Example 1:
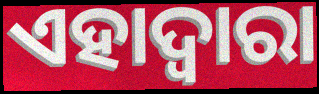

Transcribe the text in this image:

ଏହାଦ୍ୱାରା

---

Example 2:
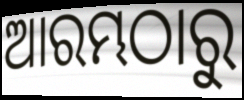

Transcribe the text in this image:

ଆରମ୍ଭଠାରୁ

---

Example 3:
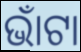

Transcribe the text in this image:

ଭାଁଟା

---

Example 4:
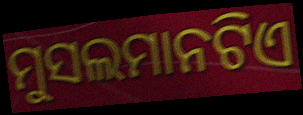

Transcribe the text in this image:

ମୁସଲମାନଟିଏ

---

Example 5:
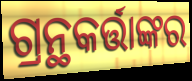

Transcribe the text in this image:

ଗ୍ରନ୍ଥକର୍ତ୍ତାଙ୍କର